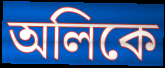
অলিকে